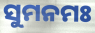
ସୁମନମଃ